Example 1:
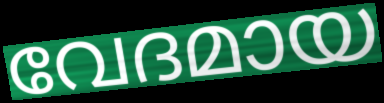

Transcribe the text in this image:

വേദമായ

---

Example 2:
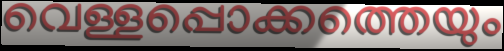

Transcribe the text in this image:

വെള്ളപ്പൊക്കത്തെയും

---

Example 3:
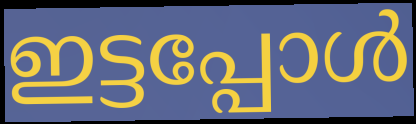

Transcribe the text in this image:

ഇട്ടപ്പോൾ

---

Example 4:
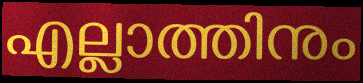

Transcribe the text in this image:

എല്ലാത്തിനും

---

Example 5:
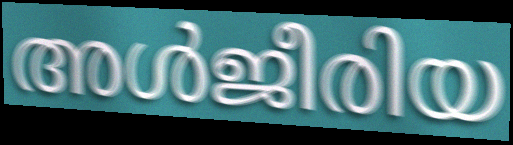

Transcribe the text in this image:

അൾജീരിയ